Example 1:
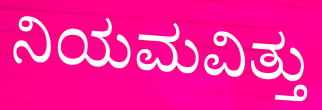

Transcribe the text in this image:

ನಿಯಮವಿತ್ತು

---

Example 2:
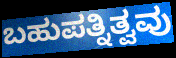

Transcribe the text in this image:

ಬಹುಪತ್ನಿತ್ವವು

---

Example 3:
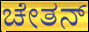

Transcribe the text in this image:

ಚೇತನ್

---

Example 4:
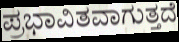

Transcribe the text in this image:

ಪ್ರಭಾವಿತವಾಗುತ್ತದೆ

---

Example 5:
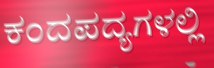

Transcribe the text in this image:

ಕಂದಪದ್ಯಗಳಲ್ಲಿ